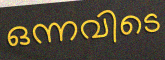
ഒന്നവിടെ